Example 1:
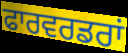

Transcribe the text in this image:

ਫਾਰਵਰਡਰਾਂ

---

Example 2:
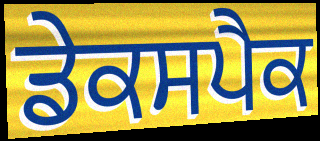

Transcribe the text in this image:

ਡੇਕਸਪੈਕ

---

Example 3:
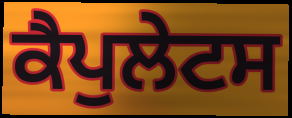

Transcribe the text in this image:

ਕੈਪੁਲੇਟਸ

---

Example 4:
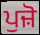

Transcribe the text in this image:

ਪੁਜ਼ੋ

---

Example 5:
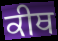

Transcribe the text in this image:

ਕੀਥ